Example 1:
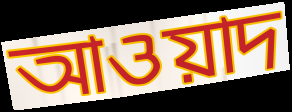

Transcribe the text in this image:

আওয়াদ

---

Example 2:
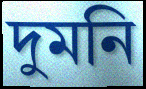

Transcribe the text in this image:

দুমনি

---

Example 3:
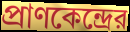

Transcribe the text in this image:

প্রাণকেন্দ্রের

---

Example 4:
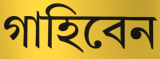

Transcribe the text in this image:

গাহিবেন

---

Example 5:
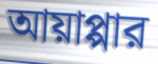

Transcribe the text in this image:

আয়াপ্পার